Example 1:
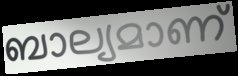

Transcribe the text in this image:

ബാല്യമാണ്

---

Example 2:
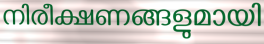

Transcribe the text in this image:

നിരീക്ഷണങ്ങളുമായി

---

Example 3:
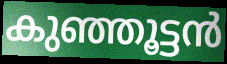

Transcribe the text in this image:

കുഞ്ഞൂട്ടൻ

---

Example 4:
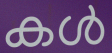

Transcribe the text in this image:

കൾ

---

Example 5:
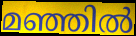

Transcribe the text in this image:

മഞ്ഞിൽ